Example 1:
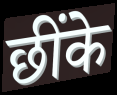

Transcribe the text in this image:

छींके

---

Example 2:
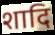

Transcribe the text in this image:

शादि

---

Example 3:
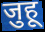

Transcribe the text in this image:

जुहू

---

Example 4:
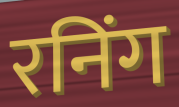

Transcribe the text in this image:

रनिंग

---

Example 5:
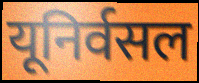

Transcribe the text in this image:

यूनिर्वसल